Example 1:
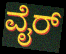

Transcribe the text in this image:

ವೈರ್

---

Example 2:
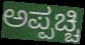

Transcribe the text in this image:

ಅಪ್ಪಚ್ಚಿ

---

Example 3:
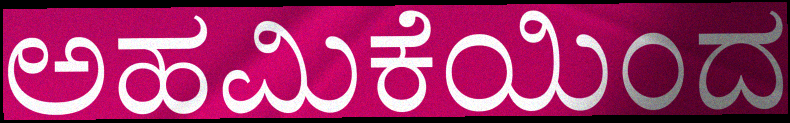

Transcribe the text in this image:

ಅಹಮಿಕೆಯಿಂದ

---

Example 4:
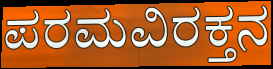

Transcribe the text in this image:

ಪರಮವಿರಕ್ತನ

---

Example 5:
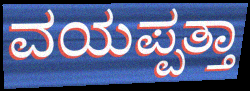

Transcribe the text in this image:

ವಯಪ್ಪತ್ತಾ